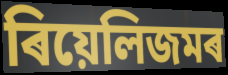
ৰিয়েলিজমৰ